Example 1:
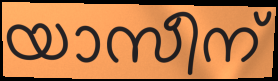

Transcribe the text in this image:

യാസീന്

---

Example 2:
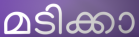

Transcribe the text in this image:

മടിക്കാ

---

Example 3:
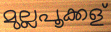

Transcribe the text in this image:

മുല്ലപൂക്കള്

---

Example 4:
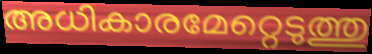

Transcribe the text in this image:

അധികാരമേറ്റെടുത്തു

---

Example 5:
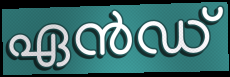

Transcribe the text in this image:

ഏൻഡ്